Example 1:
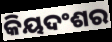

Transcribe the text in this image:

କିୟଦଂଶର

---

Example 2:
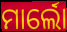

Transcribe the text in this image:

ମାର୍ଲୋ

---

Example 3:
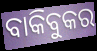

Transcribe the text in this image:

ବାକିବୁକର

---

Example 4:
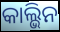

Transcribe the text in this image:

କାଲ୍ଭିନ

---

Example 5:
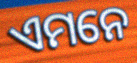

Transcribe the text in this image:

ଏମନେ